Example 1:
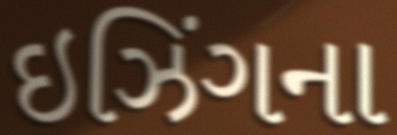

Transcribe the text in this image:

ઇઝિંગના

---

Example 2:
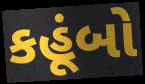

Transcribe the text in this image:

કહૂંબો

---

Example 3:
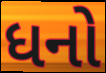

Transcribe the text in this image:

ધનો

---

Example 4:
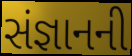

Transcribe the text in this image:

સંજ્ઞાનની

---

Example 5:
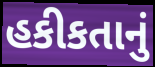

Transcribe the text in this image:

હકીકતાનું